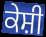
ਕੇਸ਼ੀ